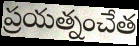
ప్రయత్నంచేత